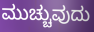
ಮುಚ್ಚುವುದು